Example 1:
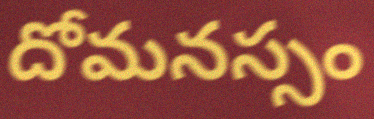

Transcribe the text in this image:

దోమనస్సం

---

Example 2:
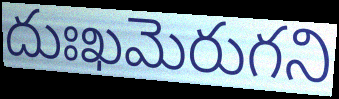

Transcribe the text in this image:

దుఃఖమెరుగని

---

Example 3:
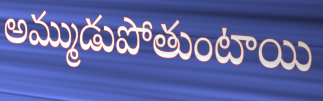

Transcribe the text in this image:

అమ్ముడుపోతుంటాయి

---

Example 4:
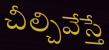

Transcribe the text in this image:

చీల్చివేస్తే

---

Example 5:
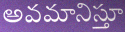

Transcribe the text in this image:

అవమానిస్తూ